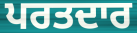
ਪਰਤਦਾਰ